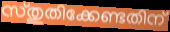
സ്തുതിക്കേണ്ടതിന്